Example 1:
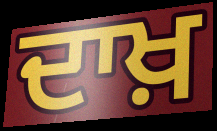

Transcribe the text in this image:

ਦਾਖ਼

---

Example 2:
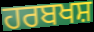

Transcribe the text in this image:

ਹਰਬਖਸ਼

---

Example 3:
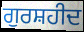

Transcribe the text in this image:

ਗੁਰਸ਼ਹੀਦ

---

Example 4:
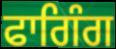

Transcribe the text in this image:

ਫਾਗਿੰਗ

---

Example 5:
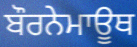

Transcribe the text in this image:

ਬੌਰਨੇਮਾਊਥ